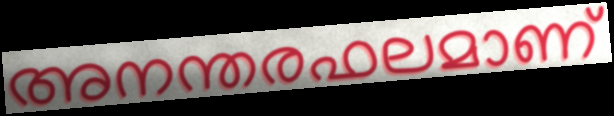
അനന്തരഫലമാണ്